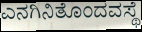
ಎನಗಿನಿತೊಂದವಸ್ಥೆ